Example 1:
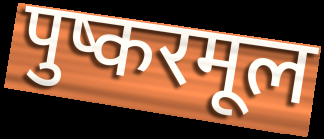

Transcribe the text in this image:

पुष्करमूल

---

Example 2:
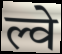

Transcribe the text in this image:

ल्वे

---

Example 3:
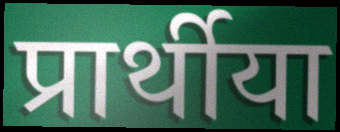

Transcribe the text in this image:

प्रार्थीया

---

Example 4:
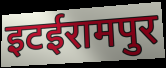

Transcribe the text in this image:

इटईरामपुर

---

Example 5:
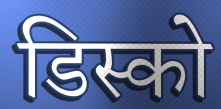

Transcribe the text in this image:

डिस्को